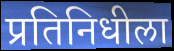
प्रतिनिधीला